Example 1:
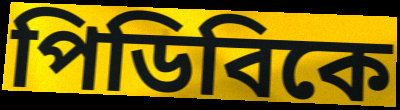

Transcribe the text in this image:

পিডিবিকে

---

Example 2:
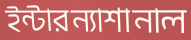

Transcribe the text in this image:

ইন্টারন্যাশানাল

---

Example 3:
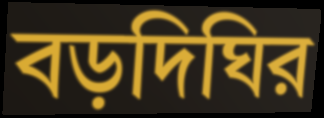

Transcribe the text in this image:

বড়দিঘির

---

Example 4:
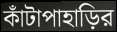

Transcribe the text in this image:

কাঁটাপাহাড়ির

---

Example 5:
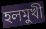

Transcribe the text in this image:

হলমুখী